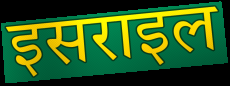
इसराइल